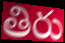
తిరు